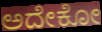
ಅದೇಕೋ